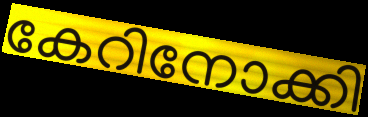
കേറിനോക്കി